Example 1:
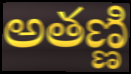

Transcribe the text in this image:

అతణ్ణి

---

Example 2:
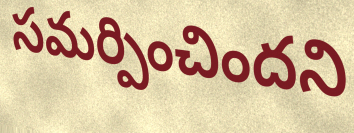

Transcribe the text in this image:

సమర్పించిందని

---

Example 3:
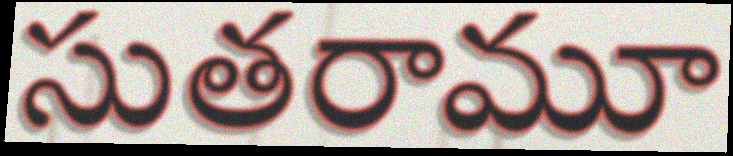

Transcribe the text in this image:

సుతరామూ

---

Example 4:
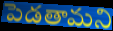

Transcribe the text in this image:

పెడతామని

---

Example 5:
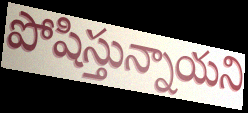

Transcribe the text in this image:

పోషిస్తున్నాయని